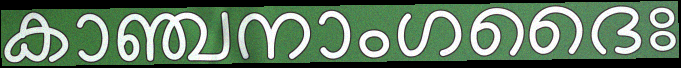
കാഞ്ചനാംഗദൈഃ